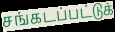
சங்கடப்பட்டுக்